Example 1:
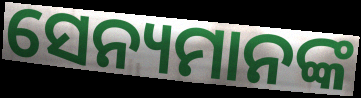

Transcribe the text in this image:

ସେନ୍ୟମାନଙ୍କ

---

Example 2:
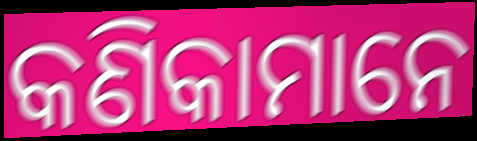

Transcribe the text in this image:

କଣିକାମାନେ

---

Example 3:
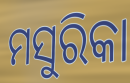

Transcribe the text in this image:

ମସୁରିକା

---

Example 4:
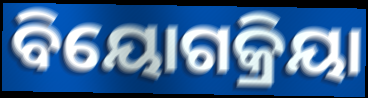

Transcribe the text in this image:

ବିୟୋଗକ୍ରିୟା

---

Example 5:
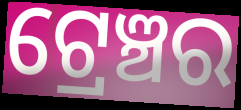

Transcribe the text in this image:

ଟ୍ରେଞ୍ଚର